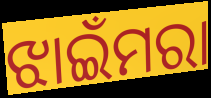
ଝାଇଁମରା